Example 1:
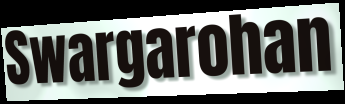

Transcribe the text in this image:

Swargarohan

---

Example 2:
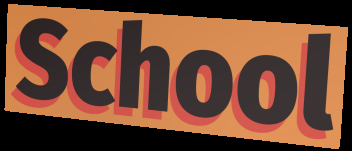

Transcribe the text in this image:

School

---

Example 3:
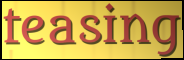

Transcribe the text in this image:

teasing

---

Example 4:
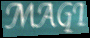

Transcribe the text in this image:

MAGI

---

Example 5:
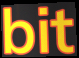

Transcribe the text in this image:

bit